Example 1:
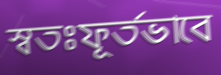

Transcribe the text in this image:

স্বতঃফূর্তভাবে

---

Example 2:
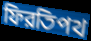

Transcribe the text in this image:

ফিরতিপথ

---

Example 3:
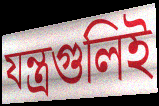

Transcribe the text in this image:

যন্ত্রগুলিই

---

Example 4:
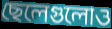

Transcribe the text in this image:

ছেলেগুলোও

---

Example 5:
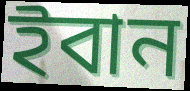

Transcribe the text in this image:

ইবান